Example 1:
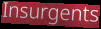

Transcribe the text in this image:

Insurgents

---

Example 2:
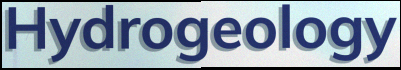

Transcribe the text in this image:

Hydrogeology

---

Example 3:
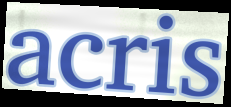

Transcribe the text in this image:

acris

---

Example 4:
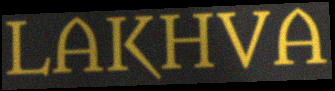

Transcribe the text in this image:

LAKHVA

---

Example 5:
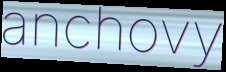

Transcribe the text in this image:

anchovy